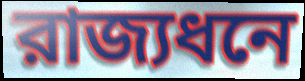
রাজ্যধনে